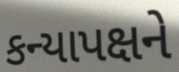
કન્યાપક્ષને